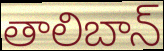
తాలిబాన్